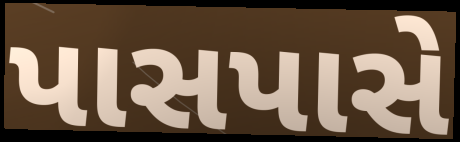
પાસપાસે